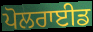
ਪੋਲਰਾਈਡ